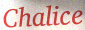
Chalice